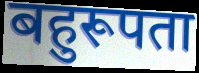
बहुरूपता